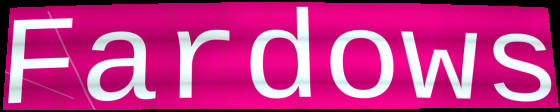
Fardows